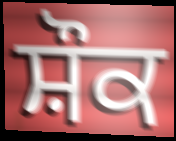
ਸ਼ੌਕ